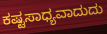
ಕಷ್ಟಸಾಧ್ಯವಾದುದು